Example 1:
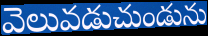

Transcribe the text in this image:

వెలువడుచుండును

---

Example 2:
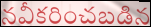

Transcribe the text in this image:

నవీకరించబడిన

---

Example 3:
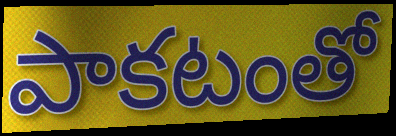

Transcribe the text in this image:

పాకటంతో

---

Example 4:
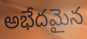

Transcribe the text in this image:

అభేదమైన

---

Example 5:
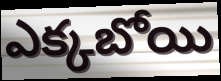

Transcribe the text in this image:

ఎక్కబోయి